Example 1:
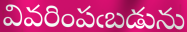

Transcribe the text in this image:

వివరింపఁబడును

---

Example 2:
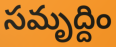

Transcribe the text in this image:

సమృద్దిం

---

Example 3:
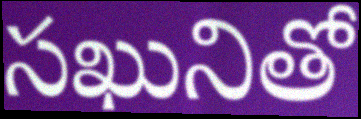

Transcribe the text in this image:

సఖునితో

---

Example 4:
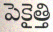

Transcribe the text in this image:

పెకైత్తి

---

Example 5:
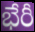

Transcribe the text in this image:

భేరీ